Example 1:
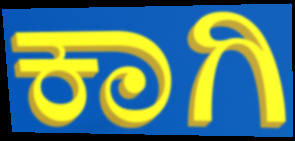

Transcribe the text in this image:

ಕಾಗಿ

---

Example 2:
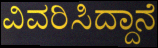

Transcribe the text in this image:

ವಿವರಿಸಿದ್ದಾನೆ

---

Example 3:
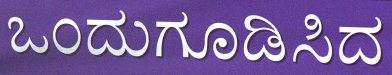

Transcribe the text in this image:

ಒಂದುಗೂಡಿಸಿದ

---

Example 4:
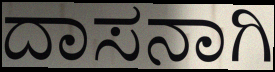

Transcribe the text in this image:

ದಾಸನಾಗಿ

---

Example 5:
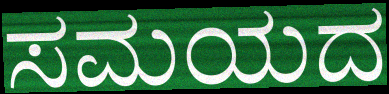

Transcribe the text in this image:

ಸಮಯದ